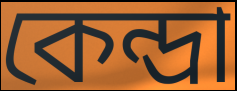
কেন্দ্রা